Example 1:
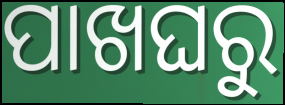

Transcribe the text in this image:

ପାଖଘରୁ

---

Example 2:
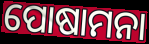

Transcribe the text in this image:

ପୋଷାମନା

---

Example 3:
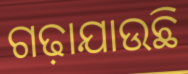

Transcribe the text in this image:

ଗଢ଼ାଯାଉଛି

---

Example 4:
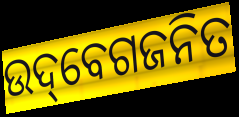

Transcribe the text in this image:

ଉଦ୍‌ବେଗଜନିତ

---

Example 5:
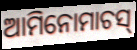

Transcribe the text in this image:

ଆମିନୋମାଚସ୍